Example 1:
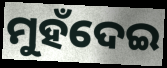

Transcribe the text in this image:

ମୁହଁଦେଇ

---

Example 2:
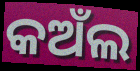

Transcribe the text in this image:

କଅଁଲ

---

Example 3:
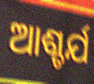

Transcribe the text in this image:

ଆଶ୍ଚର୍ଯ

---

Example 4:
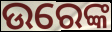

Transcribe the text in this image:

ଉରେଙ୍କ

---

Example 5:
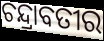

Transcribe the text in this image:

ଚନ୍ଦ୍ରାବତୀର